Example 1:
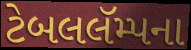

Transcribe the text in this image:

ટેબલલૅમ્પના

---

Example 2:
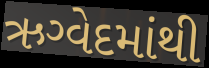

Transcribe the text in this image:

ઋગ્વેદમાંથી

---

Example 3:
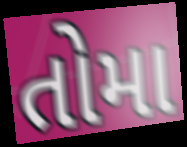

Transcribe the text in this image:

તોમા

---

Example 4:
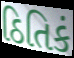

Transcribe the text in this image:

ઠિતિકં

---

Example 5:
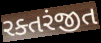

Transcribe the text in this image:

રક્તરંજીત